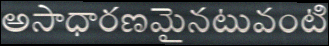
అసాధారణమైనటువంటి